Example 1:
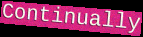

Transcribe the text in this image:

Continually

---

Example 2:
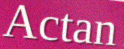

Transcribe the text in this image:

Actan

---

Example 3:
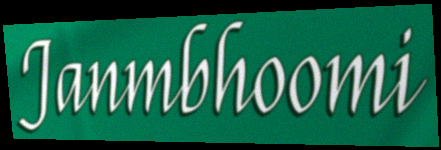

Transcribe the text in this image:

Janmbhoomi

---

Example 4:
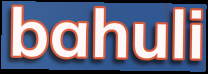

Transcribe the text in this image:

bahuli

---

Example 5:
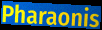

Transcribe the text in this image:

Pharaonis